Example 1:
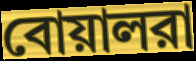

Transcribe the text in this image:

বোয়ালরা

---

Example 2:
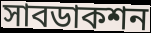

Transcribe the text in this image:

সাবডাকশন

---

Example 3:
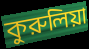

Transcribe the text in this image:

কুরুলিয়া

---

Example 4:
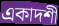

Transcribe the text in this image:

একাদশী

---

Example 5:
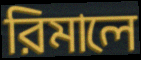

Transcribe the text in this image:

রিমালে